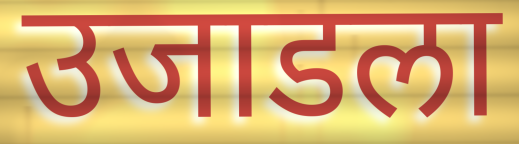
उजाडला